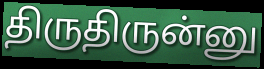
திருதிருன்னு